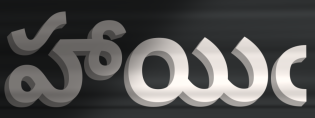
హాయిఁ